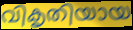
വികൃതിയായ